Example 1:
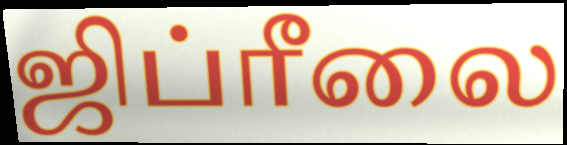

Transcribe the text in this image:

ஜிப்ரீலை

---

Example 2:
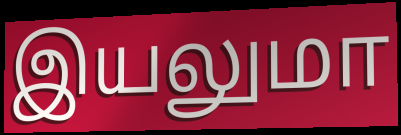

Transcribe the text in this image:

இயலுமா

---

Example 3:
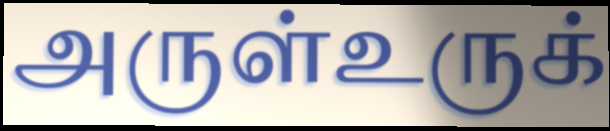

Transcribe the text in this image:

அருள்உருக்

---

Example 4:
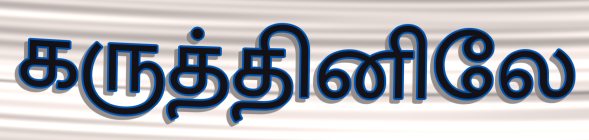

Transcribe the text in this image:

கருத்தினிலே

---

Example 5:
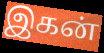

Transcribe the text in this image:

இகன்